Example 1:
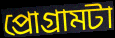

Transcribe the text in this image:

প্রোগ্রামটা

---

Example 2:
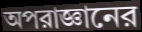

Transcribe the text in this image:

অপরাজ্ঞানের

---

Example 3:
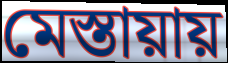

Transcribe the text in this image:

মেস্তায়ায়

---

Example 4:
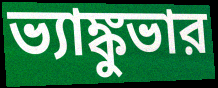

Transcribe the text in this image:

ভ্যাঙ্কুভার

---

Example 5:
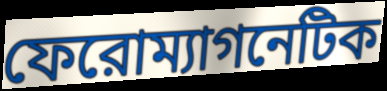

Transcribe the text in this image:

ফেরোম্যাগনেটিক